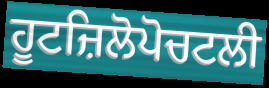
ਹੂਟਜ਼ਿਲੋਪੋਚਟਲੀ